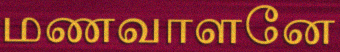
மணவாளனே